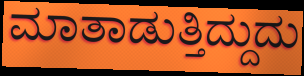
ಮಾತಾಡುತ್ತಿದ್ದುದು